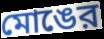
মোঙের